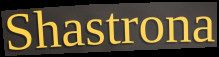
Shastrona